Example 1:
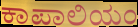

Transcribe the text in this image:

ಕಾಪಾಲಿಯಂ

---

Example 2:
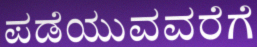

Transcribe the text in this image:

ಪಡೆಯುವವರೆಗೆ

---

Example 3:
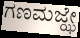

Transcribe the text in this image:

ಗಣಮಜ್ಝೇ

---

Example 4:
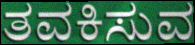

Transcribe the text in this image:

ತವಕಿಸುವ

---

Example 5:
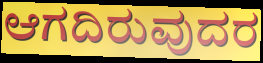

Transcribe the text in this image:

ಆಗದಿರುವುದರ